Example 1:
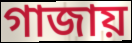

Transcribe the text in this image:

গাজায়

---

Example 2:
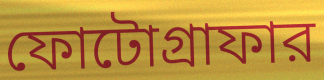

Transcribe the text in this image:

ফোটোগ্রাফার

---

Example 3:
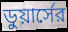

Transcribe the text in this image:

ডুয়ার্সের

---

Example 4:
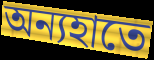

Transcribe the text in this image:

অন্যহাতে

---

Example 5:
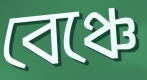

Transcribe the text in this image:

বেঞ্চে